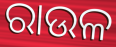
ରାଉଳ